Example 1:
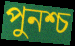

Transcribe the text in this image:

পুনশ্চ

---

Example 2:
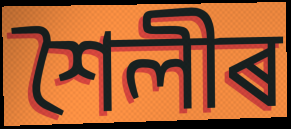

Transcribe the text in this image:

শৈলীৰ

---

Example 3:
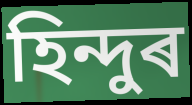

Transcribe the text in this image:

হিন্দুৰ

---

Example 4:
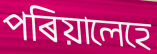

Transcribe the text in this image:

পৰিয়ালেহে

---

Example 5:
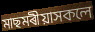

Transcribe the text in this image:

মাছমৰীয়াসকলে